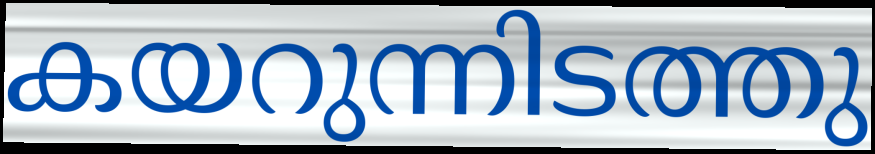
കയറുന്നിടത്തു